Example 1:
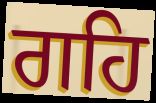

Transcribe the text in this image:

ਗਹਿ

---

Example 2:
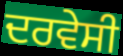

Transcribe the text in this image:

ਦਰਵੇਸੀ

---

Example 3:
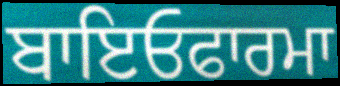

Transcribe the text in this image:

ਬਾਇਓਫਾਰਮਾ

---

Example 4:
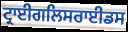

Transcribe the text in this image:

ਟ੍ਰਾਈਗਲਿਸਰਾਈਡਸ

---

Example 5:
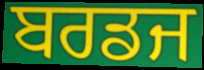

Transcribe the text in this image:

ਬਰਡਜ